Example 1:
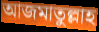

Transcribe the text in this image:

আজমাতুল্লাহ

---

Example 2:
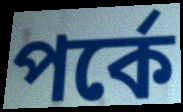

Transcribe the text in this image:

পর্কে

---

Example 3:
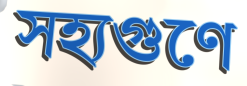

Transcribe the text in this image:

সহ্যগুণে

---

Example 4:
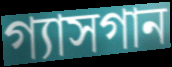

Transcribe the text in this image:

গ্যাসগান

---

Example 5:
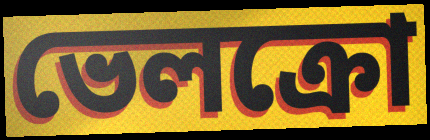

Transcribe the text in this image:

ভেলক্রো